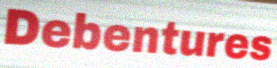
Debentures